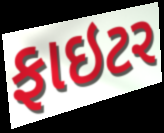
ફાઇટર